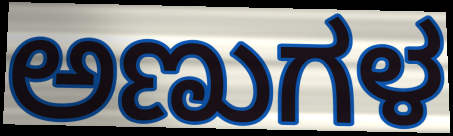
ಅಣುಗಳ